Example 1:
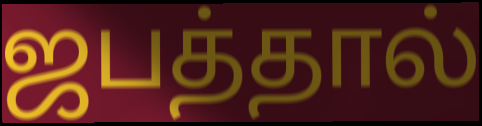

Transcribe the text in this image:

ஜபத்தால்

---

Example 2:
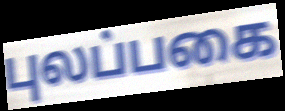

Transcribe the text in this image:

புலப்பகை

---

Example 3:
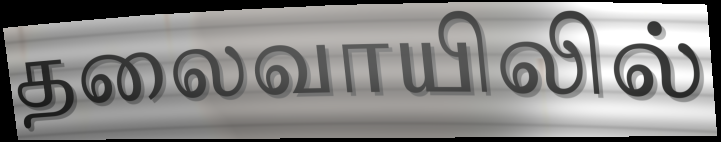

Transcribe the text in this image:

தலைவாயிலில்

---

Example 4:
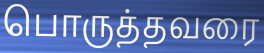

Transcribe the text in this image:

பொருத்தவரை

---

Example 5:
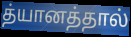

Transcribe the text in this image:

த்யானத்தால்